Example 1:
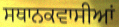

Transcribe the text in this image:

ਸਥਾਨਕਵਾਸੀਆਂ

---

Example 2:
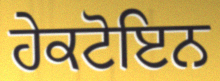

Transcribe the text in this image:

ਹੇਕਟੋਇਨ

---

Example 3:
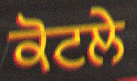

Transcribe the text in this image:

ਕੋਟਲੇ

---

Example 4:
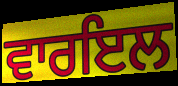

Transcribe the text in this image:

ਵਾਰਇਲ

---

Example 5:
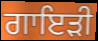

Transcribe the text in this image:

ਗਾਇੜੀ